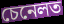
চেনেলত